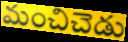
మంచిచెడు